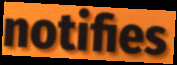
notifies